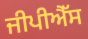
ਜੀਪੀਐੱਸ